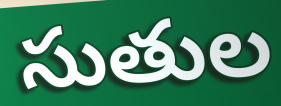
సుతుల